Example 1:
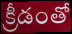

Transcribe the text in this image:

క్రీడంతో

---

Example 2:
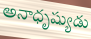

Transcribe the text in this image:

అనాధృష్యుడు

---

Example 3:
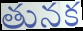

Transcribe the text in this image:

తునక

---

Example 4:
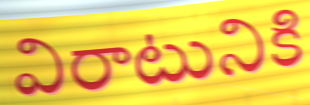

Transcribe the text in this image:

విరాటునికి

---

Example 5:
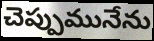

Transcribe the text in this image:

చెప్పుమునేను